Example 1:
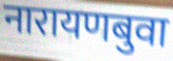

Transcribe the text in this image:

नारायणबुवा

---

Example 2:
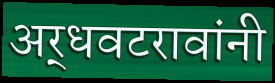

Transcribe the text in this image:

अर्धवटरावांनी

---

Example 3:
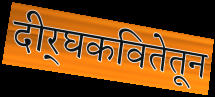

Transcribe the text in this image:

दीर्घकवितेतून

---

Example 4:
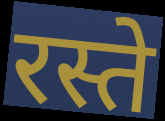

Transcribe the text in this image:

रस्ते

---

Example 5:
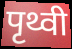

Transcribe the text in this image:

पृथ्वी